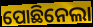
ପୋଛିନେଲା